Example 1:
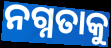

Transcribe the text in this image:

ନଗ୍ନତାକୁ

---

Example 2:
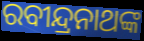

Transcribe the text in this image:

ରବୀନ୍ଦ୍ରନାଥଙ୍କ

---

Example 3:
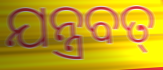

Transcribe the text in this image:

ଯନ୍ତ୍ରବତ୍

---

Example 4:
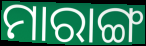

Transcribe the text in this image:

ମାରାଙ୍ଗ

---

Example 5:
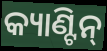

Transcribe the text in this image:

କ୍ୟାଣ୍ଟିନ୍